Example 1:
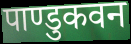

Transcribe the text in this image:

पाण्डुकवन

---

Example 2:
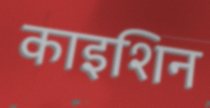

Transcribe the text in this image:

काइशिन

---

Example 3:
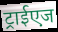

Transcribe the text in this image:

ट्राईएज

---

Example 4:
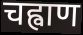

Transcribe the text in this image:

चह्वाण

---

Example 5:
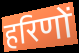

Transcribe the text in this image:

हरिणों